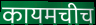
कायमचीच